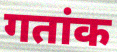
गतांक